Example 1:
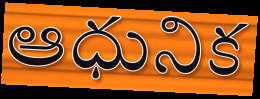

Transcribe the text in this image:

ఆధునిక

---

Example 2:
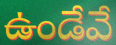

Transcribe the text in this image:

ఉండేవే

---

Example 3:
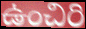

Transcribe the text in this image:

ఉంచిరి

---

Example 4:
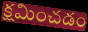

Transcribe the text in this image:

క్షమించడం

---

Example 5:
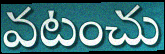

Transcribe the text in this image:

వటంచు